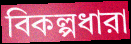
বিকল্পধারা